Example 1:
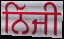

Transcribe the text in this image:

ਨਿੱਜੀ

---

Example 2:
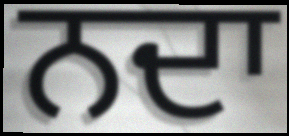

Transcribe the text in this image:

ਨਦਾ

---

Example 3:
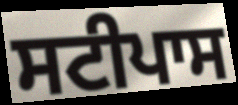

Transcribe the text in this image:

ਸਟੀਪਾਸ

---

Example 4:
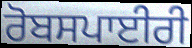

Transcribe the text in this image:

ਰੋਬਸਪਾਈਰੀ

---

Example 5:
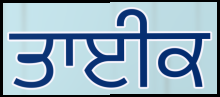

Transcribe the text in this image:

ਤਾਈਕ